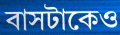
বাসটাকেও